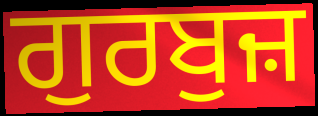
ਗੁਰਬੁਜ਼